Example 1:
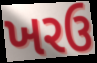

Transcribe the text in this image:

ખરઉ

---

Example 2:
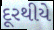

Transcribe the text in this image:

દૂરથીયે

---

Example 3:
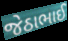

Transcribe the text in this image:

જેઠાભાઈ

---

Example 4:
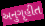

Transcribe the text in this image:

અનુગૃહીત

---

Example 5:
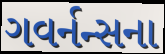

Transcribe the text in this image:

ગવર્નન્સના